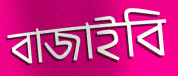
বাজাইবি